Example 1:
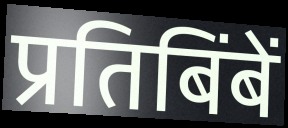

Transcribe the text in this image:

प्रतिबिंबें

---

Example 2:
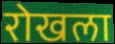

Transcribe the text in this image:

रोखला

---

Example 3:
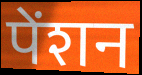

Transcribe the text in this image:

पेंशन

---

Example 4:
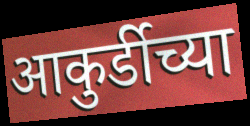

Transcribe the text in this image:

आकुर्डीच्या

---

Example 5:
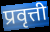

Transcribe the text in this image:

प्रवृत्ती